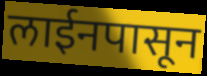
लाईनपासून